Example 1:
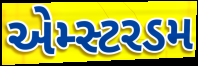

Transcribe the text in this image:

એમ્સ્ટરડમ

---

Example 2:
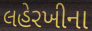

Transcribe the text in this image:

લહેરખીના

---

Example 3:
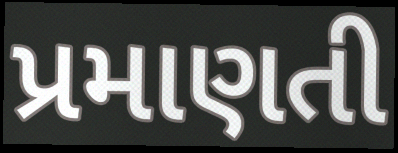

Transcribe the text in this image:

પ્રમાણતી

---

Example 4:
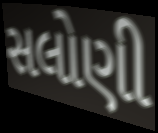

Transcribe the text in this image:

સલોણી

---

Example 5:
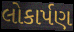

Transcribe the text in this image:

લોકાર્પણ